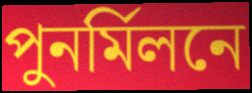
পুনর্মিলনে